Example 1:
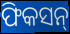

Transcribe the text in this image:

ଫିକସନ୍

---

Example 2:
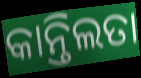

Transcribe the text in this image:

କାନ୍ତିଲତା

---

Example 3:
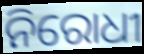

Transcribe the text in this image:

ନିରୋଧୀ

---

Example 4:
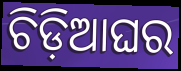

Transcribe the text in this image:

ଚିଡ଼ିଆଘର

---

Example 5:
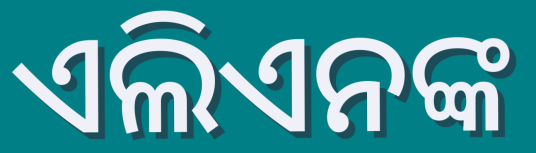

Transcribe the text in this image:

ଏଲିଏନଙ୍କ